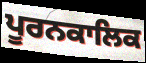
ਪੂਰਨਕਾਲਿਕ